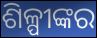
ଶିଳ୍ପୀଙ୍କର